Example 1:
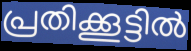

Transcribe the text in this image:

പ്രതിക്കൂട്ടിൽ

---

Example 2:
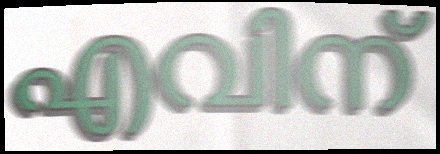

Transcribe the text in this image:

എവിന്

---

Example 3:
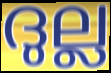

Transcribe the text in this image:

ദുല്ല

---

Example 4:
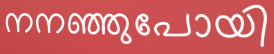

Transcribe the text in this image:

നനഞ്ഞുപോയി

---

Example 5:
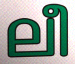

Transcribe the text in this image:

ലീ